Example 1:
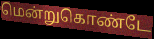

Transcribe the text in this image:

மென்றுகொண்டே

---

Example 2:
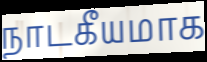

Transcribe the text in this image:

நாடகீயமாக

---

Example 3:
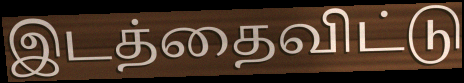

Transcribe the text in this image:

இடத்தைவிட்டு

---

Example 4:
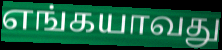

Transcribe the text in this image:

எங்கயாவது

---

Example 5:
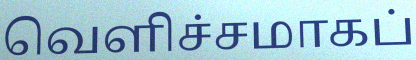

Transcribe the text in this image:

வெளிச்சமாகப்